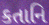
કતાનિ